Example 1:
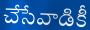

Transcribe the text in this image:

చేసేవాడికీ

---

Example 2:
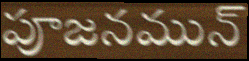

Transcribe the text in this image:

పూజనమున్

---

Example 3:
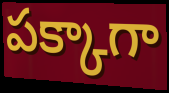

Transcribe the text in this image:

పక్కాగా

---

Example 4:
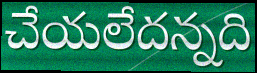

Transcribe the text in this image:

చేయలేదన్నది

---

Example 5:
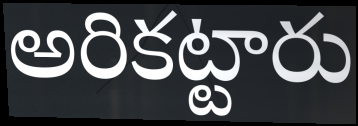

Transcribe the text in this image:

అరికట్టారు